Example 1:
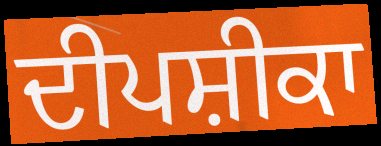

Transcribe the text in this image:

ਦੀਪਸ਼ੀਕਾ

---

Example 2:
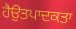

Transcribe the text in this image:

ਹੈਉਤਪਾਦਕਤਾ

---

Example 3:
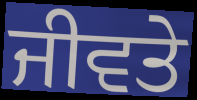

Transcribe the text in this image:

ਜੀਵਤੇ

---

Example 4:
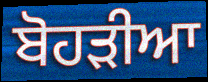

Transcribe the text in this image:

ਬੋਹੜੀਆ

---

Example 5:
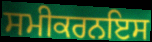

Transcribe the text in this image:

ਸਮੀਕਰਨਇਸ